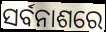
ସର୍ବନାଶରେ